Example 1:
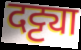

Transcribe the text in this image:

दट्ट्या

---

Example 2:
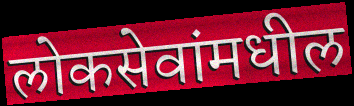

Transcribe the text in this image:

लोकसेवांमधील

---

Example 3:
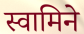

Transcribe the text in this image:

स्वामिने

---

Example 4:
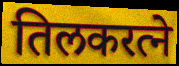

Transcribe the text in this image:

तिलकरत्ने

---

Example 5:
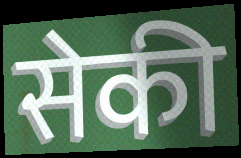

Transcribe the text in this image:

सेकी